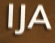
IJA